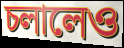
চলালেও